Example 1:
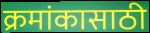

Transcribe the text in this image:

क्रमांकासाठी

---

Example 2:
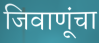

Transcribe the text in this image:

जिवाणूंचा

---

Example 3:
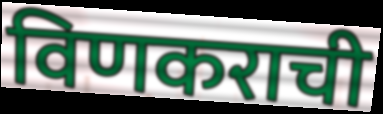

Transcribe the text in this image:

विणकराची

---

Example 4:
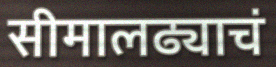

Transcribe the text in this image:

सीमालढ्याचं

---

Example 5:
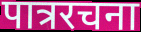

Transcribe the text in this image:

पात्ररचना